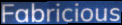
Fabricious